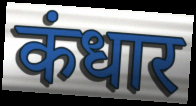
कंधार